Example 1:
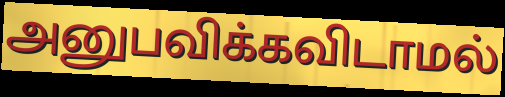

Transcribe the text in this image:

அனுபவிக்கவிடாமல்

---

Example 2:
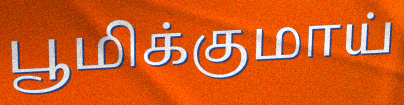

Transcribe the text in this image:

பூமிக்குமாய்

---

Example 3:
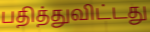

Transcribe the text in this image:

பதித்துவிட்டது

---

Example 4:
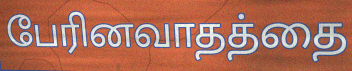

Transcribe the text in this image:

பேரினவாதத்தை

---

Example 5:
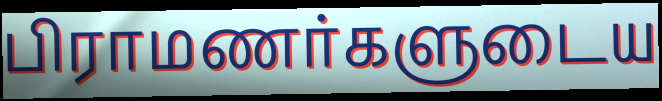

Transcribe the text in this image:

பிராமணர்களுடைய